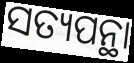
ସତ୍ୟପନ୍ଥା